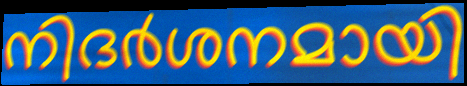
നിദർശനമായി